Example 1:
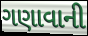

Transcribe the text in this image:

ગણાવાની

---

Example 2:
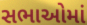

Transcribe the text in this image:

સભાઓમાં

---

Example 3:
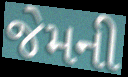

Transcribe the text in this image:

જેમની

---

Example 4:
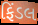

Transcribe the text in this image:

ફિંડલ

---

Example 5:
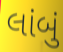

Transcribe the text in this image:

લાંબું